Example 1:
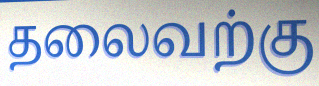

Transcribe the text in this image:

தலைவற்கு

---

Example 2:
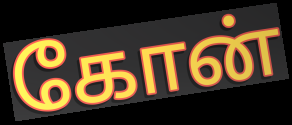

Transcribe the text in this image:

கோன்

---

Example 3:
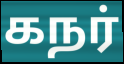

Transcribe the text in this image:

கநர்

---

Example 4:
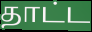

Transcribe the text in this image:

தாட்ட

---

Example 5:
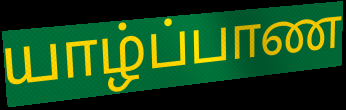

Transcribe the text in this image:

யாழ்ப்பாண